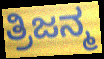
ತ್ರಿಜನ್ಮ